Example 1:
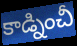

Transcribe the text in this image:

కాడ్నించీ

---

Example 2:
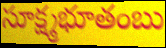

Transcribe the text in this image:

సూక్ష్మభూతంబు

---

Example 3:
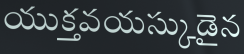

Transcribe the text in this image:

యుక్తవయస్కుడైన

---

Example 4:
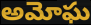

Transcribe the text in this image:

అమోఘ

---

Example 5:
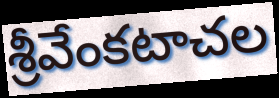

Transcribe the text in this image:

శ్రీవేంకటాచల